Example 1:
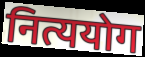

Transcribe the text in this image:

नित्ययोग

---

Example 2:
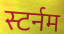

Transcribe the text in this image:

स्टर्नम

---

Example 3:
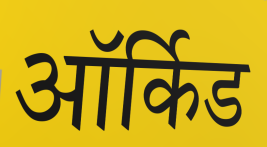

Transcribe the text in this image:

ऑर्किड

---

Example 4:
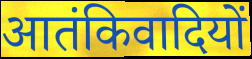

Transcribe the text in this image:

आतंकिवादियों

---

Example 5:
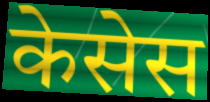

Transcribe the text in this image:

केसेस